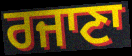
ਰਜਾਣਾ